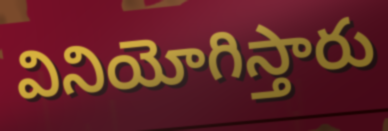
వినియోగిస్తారు